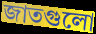
জাতগুলো